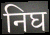
निघ